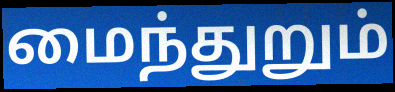
மைந்துறும்